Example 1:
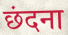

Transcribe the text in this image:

छंदना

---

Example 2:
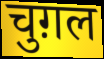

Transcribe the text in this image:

चुग़ल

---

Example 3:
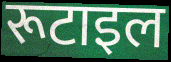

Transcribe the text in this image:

रूटाइल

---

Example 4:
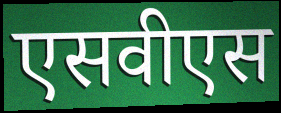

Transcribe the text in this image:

एसवीएस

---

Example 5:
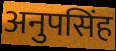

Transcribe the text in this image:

अनुपसिंह